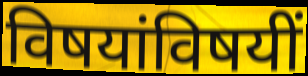
विषयांविषयीं